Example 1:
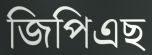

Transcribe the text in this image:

জিপিএছ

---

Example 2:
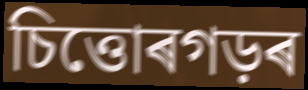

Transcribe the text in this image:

চিত্তোৰগড়ৰ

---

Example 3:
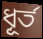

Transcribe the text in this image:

ধূৰ্ত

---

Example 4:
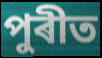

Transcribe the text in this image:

পুৰীত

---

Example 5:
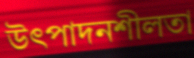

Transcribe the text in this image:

উৎপাদনশীলতা